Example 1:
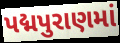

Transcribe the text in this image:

પદ્મપુરાણમાં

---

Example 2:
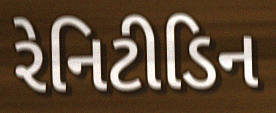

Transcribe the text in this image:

રેનિટીડિન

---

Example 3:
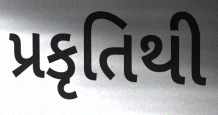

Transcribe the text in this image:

પ્રકૃતિથી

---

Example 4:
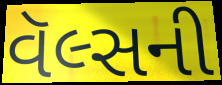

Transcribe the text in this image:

વૅલ્સની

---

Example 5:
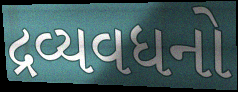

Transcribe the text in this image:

દ્રવ્યવધનો